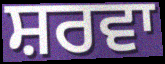
ਸ਼ਰਵਾ